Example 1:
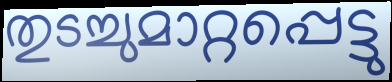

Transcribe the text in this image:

തുടച്ചുമാറ്റപ്പെട്ടു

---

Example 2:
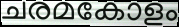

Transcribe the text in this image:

ചരമകോളം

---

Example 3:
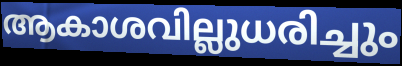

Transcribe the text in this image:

ആകാശവില്ലുധരിച്ചും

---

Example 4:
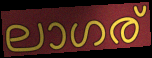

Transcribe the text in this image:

ലാഗര്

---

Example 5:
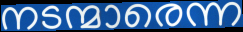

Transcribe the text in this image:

നടന്മാരെന്ന